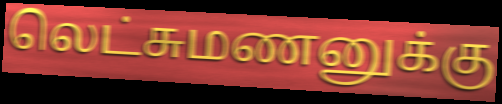
லெட்சுமணனுக்கு